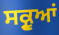
ਸਕ੍ਰੂਆਂ